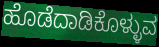
ಹೊಡೆದಾಡಿಕೊಳ್ಳುವ